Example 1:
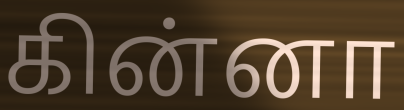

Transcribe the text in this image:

கின்னா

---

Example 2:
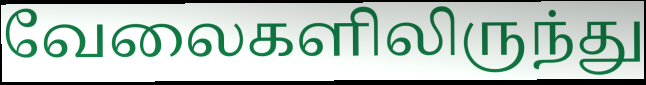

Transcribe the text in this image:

வேலைகளிலிருந்து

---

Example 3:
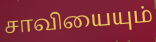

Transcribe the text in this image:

சாவியையும்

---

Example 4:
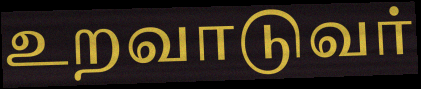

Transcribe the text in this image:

உறவாடுவர்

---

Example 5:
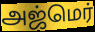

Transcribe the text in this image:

அஜ்மெர்